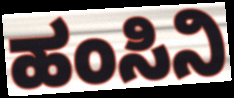
ಹಂಸಿನಿ